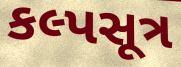
કલ્પસૂત્ર